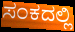
ಸಂಕದಲ್ಲಿ